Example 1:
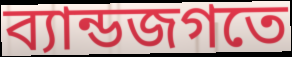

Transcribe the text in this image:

ব্যান্ডজগতে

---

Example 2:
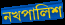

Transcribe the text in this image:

নখপালিশ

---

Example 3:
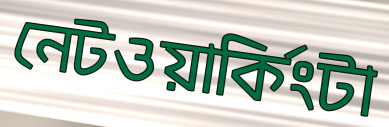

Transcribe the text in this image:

নেটওয়ার্কিংটা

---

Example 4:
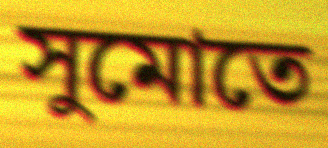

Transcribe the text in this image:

সুমোতে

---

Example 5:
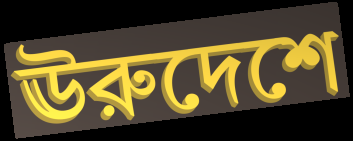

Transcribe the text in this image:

ঊরুদেশে